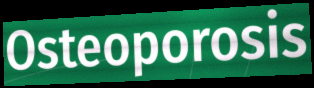
Osteoporosis